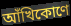
আঁখিকোণে